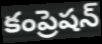
కంప్రెషన్